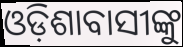
ଓଡ଼ିଶାବାସୀଙ୍କୁ